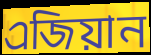
এজিয়ান